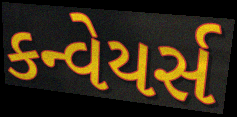
કન્વેયર્સ